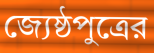
জ্যেষ্ঠপুত্রের